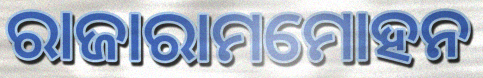
ରାଜାରାମମୋହନ